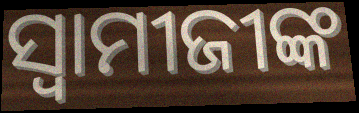
ସ୍ୱାମୀଜୀଙ୍କ